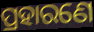
ପ୍ରହାରଣେ